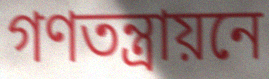
গণতন্ত্রায়নে